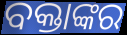
ବକ୍ତାଙ୍କର